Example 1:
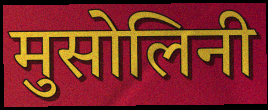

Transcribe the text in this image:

मुसोलिनी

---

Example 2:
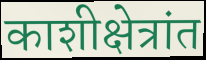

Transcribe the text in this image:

काशीक्षेत्रांत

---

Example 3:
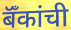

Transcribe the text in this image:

बॅँकांची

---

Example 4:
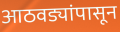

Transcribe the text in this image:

आठवड्यांपासून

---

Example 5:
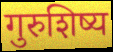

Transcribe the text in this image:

गुरुशिष्य